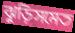
ঝুড়িসমেত